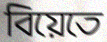
বিয়েতে